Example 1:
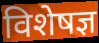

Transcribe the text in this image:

विशेषज्ञ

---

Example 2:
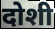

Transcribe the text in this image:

दोशी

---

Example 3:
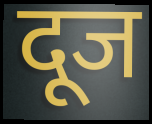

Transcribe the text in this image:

दूज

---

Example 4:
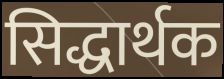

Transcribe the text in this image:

सिद्धार्थक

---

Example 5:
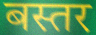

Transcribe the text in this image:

बस्तर